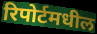
रिपोर्टमधील